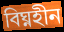
বিঘ্নহীন